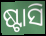
ଷ୍ଟାସି